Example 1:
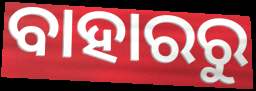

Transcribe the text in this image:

ବାହାରରୁ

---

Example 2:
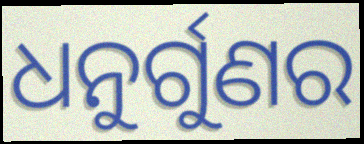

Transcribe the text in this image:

ଧନୁର୍ଗୁଣର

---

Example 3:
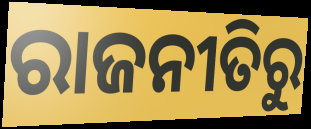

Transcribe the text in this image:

ରାଜନୀତିରୁ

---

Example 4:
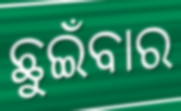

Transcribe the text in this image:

ଛୁଇଁବାର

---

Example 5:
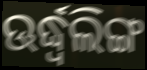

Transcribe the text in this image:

ଊର୍ଦ୍ଧ୍ୱଲିଙ୍ଗ